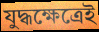
যুদ্ধক্ষেত্রেই